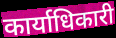
कार्याधिकारी